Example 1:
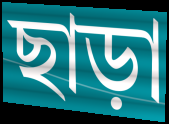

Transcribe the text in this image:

ছাড়া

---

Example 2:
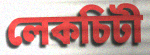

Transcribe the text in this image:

লেকচিটী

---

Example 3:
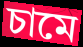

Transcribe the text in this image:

চামে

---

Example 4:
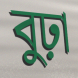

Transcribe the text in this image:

বুঢ়া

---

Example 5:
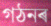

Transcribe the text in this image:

গঠনৰ